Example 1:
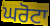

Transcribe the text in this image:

ਘਰੋਟਾ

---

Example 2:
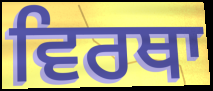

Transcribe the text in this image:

ਵਿਰਥਾ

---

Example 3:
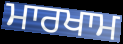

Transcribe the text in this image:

ਮਾਰਖਾਮ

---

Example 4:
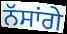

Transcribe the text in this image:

ਨੱਸਾਂਗੇ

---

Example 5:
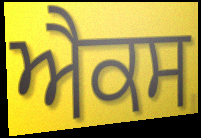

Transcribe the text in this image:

ਐਕਸ